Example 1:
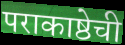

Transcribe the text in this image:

पराकाष्ठेची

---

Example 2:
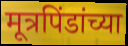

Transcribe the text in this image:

मूत्रपिंडांच्या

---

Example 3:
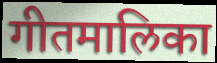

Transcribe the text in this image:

गीतमालिका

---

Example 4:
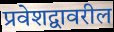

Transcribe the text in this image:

प्रवेशद्वावरील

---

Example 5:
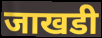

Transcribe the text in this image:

जाखडी